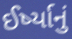
ઈર્ષ્યાનું